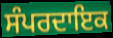
ਸੰਪਰਦਾਇਕ